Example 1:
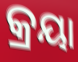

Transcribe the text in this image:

କ୍ରୟା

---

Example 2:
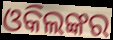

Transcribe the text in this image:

ଓକିଲଙ୍କର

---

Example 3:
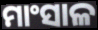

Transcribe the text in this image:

ମାଂସାଳ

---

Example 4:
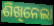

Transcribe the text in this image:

ଶିଖିନେଲା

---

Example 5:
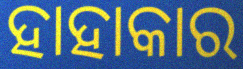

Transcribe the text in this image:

ହାହାକାର